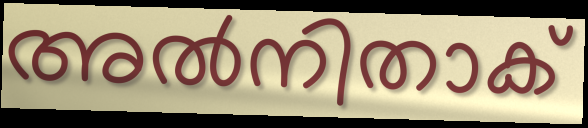
അൽനിതാക്